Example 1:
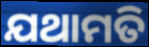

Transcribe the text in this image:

ଯଥାମତି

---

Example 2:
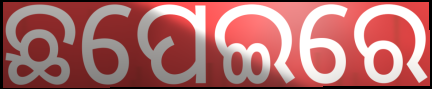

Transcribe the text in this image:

ଛପେଇରେ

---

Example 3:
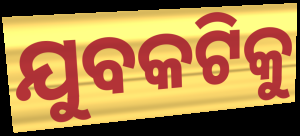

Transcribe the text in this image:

ଯୁବକଟିକୁ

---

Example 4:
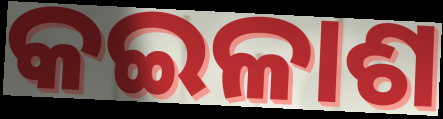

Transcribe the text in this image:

କଇଳାଶ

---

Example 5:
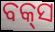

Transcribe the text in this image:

ବକ୍‍ସ